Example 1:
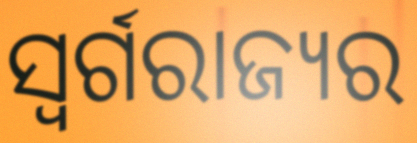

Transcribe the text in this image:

ସ୍ୱର୍ଗରାଜ୍ୟର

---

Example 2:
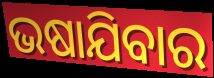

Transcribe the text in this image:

ଭଷାଯିବାର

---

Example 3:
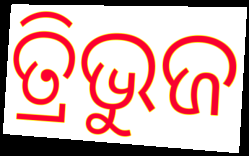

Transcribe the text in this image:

ତ୍ରିଭୁଜ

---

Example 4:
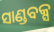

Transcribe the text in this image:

ସାଣ୍ଡବକ୍ସ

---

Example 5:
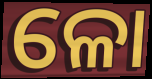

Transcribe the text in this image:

ଳୋ